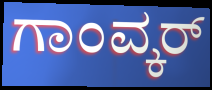
ಗಾಂವ್ಕರ್